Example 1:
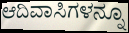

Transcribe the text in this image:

ಆದಿವಾಸಿಗಳನ್ನೂ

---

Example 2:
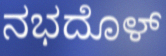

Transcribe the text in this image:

ನಭದೊಳ್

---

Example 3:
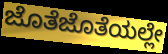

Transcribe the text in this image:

ಜೊತೆಜೊತೆಯಲ್ಲೇ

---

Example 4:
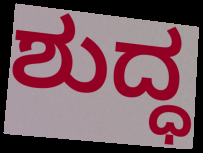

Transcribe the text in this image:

ಶುದ್ಧ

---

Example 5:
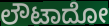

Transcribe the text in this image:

ಲೌಟಾದೋ